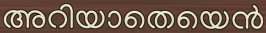
അറിയാതെയെൻ